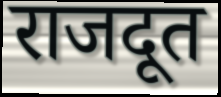
राजदूत